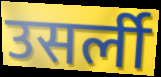
उसर्ली